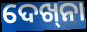
ଦେଖ୍‌ନା